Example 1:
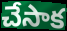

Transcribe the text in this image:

చేసాక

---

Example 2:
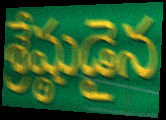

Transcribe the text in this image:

శ్రేష్ఠుడైన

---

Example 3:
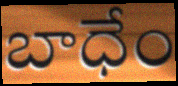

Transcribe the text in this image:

బాధేం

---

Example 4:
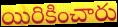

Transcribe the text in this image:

యిరికించారు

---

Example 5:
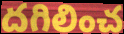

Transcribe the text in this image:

దగిలించ